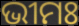
ଭୀମଃ